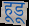
हूडू